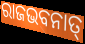
ରାଜଭବନାତ୍